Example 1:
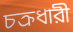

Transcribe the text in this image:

চক্রধারী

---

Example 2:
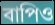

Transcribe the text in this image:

বাপিও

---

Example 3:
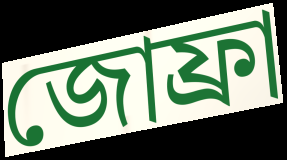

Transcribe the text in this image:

জোফ্রা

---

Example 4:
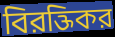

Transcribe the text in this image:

বিরক্তিকর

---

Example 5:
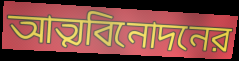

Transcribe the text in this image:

আত্মবিনোদনের